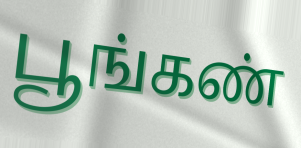
பூங்கண்